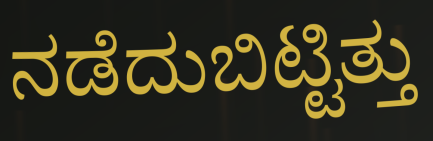
ನಡೆದುಬಿಟ್ಟಿತ್ತು